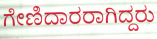
ಗೇಣಿದಾರರಾಗಿದ್ದರು